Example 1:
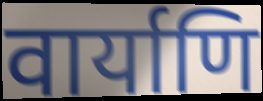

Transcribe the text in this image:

वार्याणि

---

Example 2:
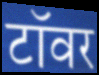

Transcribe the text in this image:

टॉवर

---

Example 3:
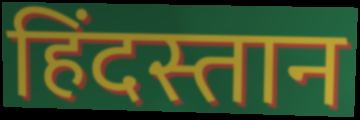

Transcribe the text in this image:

हिंदस्तान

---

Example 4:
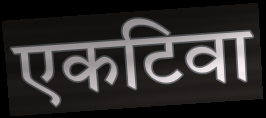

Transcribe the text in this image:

एकटिवा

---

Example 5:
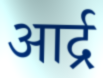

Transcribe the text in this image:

आर्द्र